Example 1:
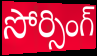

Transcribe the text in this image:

సోర్సింగ్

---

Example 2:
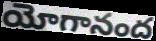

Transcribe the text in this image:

యోగానంద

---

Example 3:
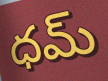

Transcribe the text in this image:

ధమ్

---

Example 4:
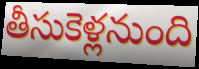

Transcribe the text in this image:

తీసుకెళ్లనుంది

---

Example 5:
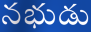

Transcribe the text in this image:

నభుడు